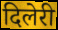
दिलेरी